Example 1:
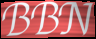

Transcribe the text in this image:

BBN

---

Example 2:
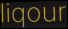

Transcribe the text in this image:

liqour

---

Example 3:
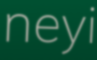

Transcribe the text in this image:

neyi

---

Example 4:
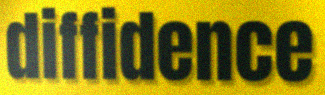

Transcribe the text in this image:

diffidence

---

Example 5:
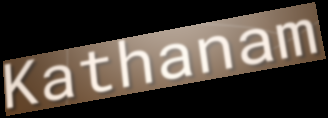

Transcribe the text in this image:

Kathanam